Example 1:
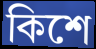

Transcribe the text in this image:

কিশে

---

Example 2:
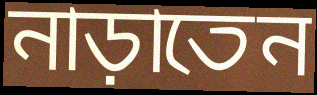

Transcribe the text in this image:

নাড়াতেন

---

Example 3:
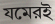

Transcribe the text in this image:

যমেরই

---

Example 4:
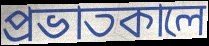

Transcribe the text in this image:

প্রভাতকালে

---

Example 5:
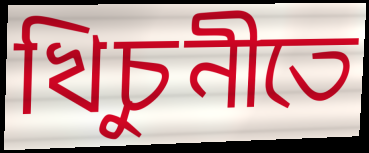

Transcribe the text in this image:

খিচুনীতে